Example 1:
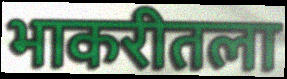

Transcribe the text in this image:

भाकरीतला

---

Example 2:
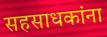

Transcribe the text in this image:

सहसाधकांना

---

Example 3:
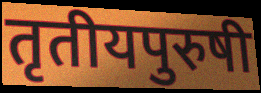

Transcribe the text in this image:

तृतीयपुरुषी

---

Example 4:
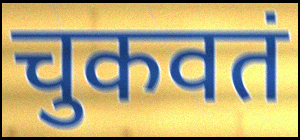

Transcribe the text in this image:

चुकवतं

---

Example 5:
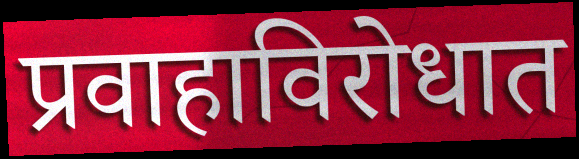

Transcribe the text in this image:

प्रवाहाविरोधात